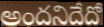
అందనిదేదో